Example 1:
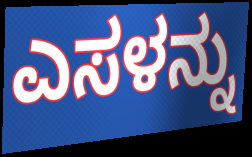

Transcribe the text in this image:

ಎಸಳನ್ನು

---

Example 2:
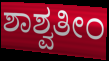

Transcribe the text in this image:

ಶಾಶ್ವತೀಂ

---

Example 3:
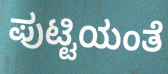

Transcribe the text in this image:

ಪುಟ್ಟಿಯಂತೆ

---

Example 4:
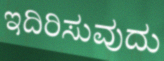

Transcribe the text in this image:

ಇದಿರಿಸುವುದು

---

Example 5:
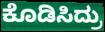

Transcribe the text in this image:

ಕೊಡಿಸಿದ್ರು